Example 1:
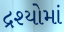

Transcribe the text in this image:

દ્રશ્યોમાં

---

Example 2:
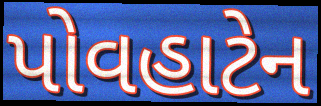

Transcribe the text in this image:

પોવહાટેન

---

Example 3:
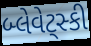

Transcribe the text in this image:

બ્લેવેટ્સ્કી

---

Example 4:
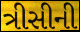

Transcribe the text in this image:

ત્રીસીની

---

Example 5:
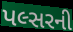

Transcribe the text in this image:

પલ્સરની